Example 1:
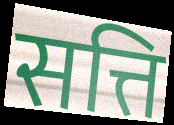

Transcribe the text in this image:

सत्ति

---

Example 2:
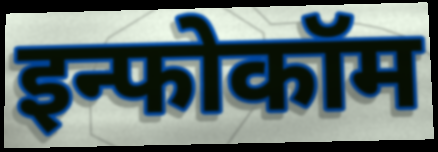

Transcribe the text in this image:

इन्फोकॉम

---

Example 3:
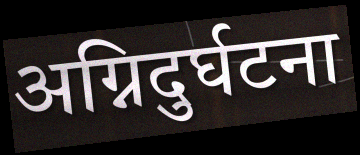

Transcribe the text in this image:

अग्निदुर्घटना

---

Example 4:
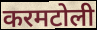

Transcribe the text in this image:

करमटोली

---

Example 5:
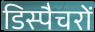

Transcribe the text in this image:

डिस्पैचरों